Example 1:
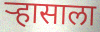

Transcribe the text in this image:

ऱ्हासाला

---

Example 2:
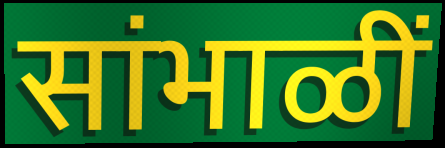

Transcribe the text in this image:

सांभाळीं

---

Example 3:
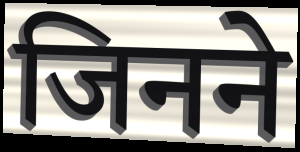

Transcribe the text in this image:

जिनने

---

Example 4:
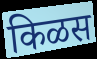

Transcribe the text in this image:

किळस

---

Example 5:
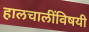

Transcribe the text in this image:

हालचालींविषयी